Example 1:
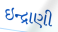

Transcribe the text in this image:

ઇન્દ્રાણી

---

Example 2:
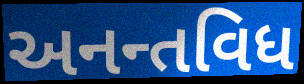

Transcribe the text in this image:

અનન્તવિધ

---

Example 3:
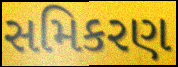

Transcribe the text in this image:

સમિકરણ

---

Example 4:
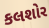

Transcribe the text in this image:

કલશોર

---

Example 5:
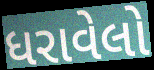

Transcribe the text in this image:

ધરાવેલો